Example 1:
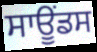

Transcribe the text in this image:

ਸਾਊਂਡਸ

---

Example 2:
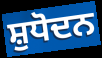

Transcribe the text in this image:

ਸ਼ੁਧੋਦਨ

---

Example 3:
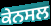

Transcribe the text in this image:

ਕੇਨਸਲ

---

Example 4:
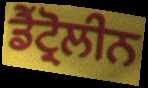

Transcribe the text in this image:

ਡੈਂਟ੍ਰੋਲੀਨ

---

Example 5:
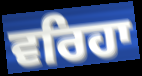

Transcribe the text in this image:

ਵਰਿਹਾ